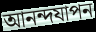
আনন্দযাপন